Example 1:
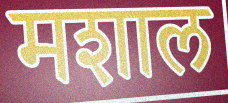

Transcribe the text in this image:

मशाल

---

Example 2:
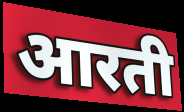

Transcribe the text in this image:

आरती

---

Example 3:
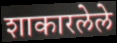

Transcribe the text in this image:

शाकारलेले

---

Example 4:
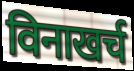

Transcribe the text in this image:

विनाखर्च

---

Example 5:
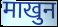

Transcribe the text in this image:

माखुन